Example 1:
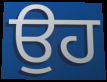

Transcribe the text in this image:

ਉਹ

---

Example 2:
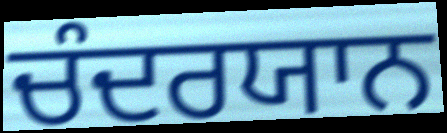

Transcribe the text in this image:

ਚੰਦਰਯਾਨ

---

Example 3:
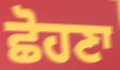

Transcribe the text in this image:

ਛੋਹਣਾ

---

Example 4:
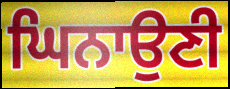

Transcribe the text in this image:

ਘਿਨਾਉਣੀ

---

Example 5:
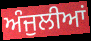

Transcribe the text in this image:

ਅੰਜੁਲੀਆਂ